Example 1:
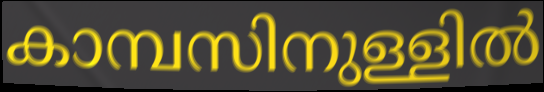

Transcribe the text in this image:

കാമ്പസിനുള്ളിൽ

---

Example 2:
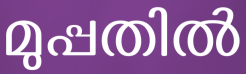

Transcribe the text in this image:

മുപ്പതിൽ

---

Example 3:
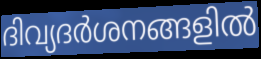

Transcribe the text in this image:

ദിവ്യദർശനങ്ങളിൽ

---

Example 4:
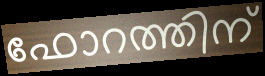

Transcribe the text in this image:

ഫോറത്തിന്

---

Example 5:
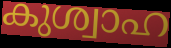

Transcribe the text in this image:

കുശ്വാഹ